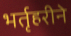
भर्तृहरीने